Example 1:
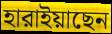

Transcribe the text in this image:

হারাইয়াছেন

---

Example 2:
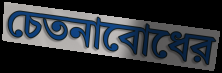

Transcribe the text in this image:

চেতনাবোধের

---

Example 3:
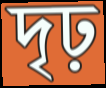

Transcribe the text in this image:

দৃঢ়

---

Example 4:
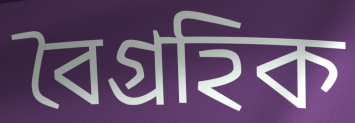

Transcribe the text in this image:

বৈগ্রহিক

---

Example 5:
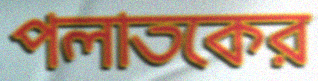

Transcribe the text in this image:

পলাতকের